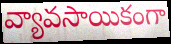
వ్యావసాయికంగా